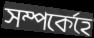
সম্পৰ্কেহে